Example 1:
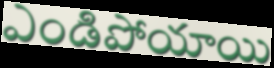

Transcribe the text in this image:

ఎండిపోయాయి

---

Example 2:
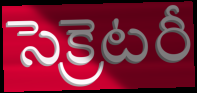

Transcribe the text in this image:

సెక్రెటరీ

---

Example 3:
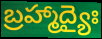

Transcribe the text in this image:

బ్రహ్మాద్యైః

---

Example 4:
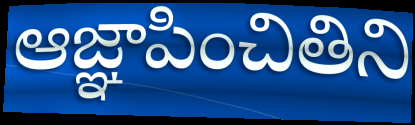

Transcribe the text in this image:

ఆజ్ఞాపించితిని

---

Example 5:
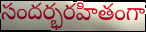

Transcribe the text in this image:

సందర్భరహితంగా